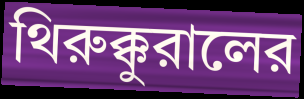
থিরুক্কুরালের